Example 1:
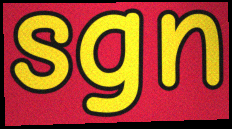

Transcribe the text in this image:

sgn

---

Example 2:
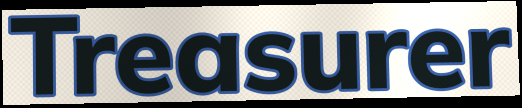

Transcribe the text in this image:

Treasurer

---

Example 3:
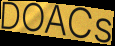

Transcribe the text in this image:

DOACs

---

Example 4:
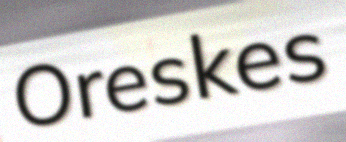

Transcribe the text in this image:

Oreskes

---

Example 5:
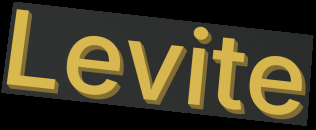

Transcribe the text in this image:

Levite